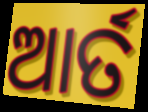
ଆର୍ତ